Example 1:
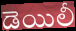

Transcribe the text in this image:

డెయిలీ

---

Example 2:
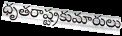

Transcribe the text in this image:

ధృతరాష్ట్రకుమారులు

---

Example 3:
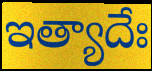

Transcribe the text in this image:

ఇత్యాదేః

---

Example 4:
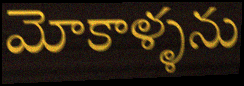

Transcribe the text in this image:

మోకాళ్ళను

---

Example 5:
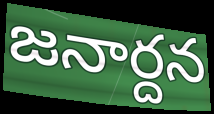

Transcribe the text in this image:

జనార్దన